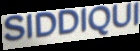
SIDDIQUI